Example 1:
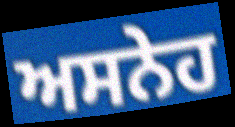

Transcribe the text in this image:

ਅਸਨੇਹ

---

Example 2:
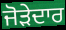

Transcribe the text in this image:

ਜੋੜੇਦਾਰ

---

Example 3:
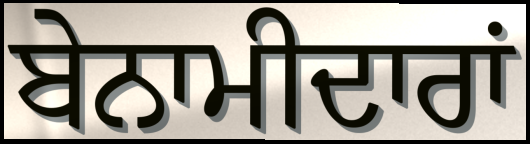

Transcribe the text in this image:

ਬੇਨਾਮੀਦਾਰਾਂ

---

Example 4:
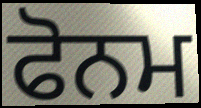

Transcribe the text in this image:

ਫੋਨਮ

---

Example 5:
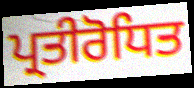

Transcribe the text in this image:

ਪ੍ਰਤੀਰੋਧਿਤ